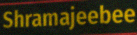
Shramajeebee